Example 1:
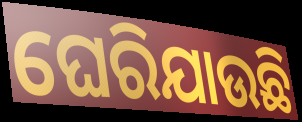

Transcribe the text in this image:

ଘେରିଯାଉଛି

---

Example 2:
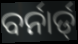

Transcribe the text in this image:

ବର୍ନାର୍ଡ୍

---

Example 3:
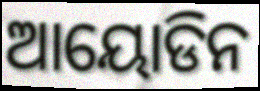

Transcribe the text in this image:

ଆୟୋଡିନ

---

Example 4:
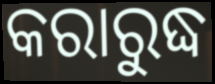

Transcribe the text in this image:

କରାରୁଦ୍ଧ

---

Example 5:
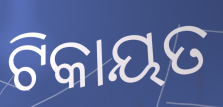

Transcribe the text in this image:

ଟିକାୟତ